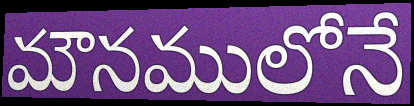
మౌనములోనే